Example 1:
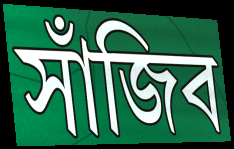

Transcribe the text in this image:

সাঁজিব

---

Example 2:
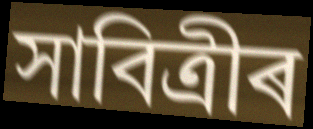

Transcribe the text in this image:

সাবিত্ৰীৰ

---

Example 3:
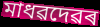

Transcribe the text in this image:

মাধৱদেৱৰ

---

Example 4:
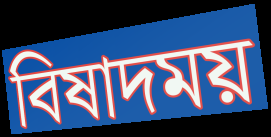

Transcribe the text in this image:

বিষাদময়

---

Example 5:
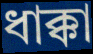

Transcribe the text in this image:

ধাক্কা